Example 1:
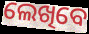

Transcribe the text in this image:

ଲେଖିବେ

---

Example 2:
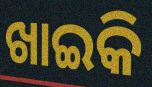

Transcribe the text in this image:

ଖାଇକି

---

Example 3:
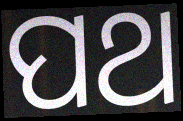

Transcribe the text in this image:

ପଥ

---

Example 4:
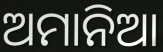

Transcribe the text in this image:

ଅମାନିଆ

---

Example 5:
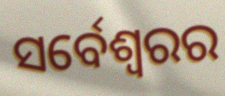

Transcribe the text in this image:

ସର୍ବେଶ୍ୱରର